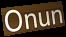
Onun